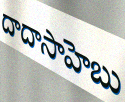
దాదాసాహెబు